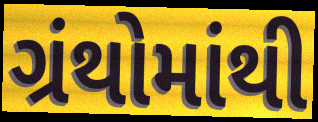
ગ્રંથોમાંથી